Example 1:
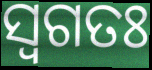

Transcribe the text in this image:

ସ୍ଵଗତଃ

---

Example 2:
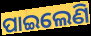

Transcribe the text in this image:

ପାଇଲେଣି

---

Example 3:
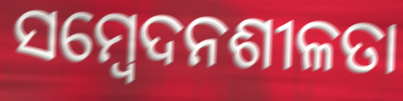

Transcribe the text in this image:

ସମ୍ଵେଦନଶୀଳତା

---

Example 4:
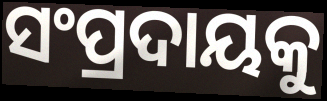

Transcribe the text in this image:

ସଂପ୍ରଦାୟକୁ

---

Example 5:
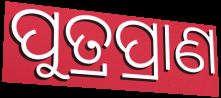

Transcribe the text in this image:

ପୁତ୍ରପ୍ରାଣ